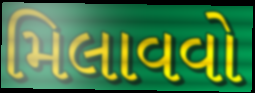
મિલાવવો